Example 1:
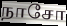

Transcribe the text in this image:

நாசோ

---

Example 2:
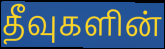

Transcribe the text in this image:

தீவுகளின்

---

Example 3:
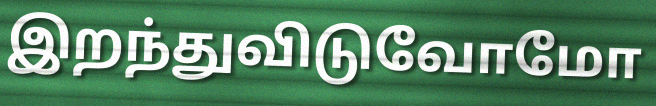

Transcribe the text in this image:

இறந்துவிடுவோமோ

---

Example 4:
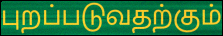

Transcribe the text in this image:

புறப்படுவதற்கும்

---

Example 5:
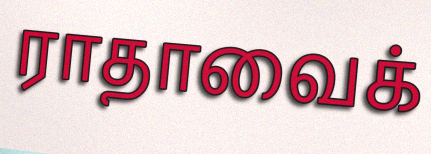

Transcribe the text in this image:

ராதாவைக்